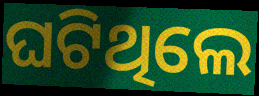
ଘଟିଥିଲେ